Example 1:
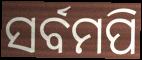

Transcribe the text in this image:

ସର୍ବମପି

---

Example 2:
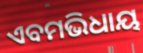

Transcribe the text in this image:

ଏବମଭିଧାୟ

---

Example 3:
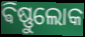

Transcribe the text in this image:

ଵିଷ୍ଣୁଲୋକ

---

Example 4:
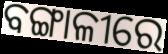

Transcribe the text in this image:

ବଙ୍ଗାଳୀରେ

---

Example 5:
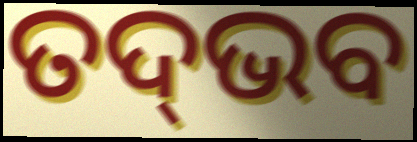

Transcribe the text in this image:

ତଦ୍‌ଭବ